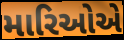
મારિઓએ